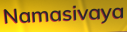
Namasivaya